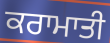
ਕਰਾਮਾਤੀ